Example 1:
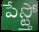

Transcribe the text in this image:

పేస్ట్తో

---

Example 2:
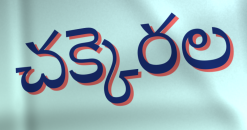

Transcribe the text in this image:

చక్కెరల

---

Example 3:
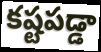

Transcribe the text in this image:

కష్టపడ్డా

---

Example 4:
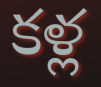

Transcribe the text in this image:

కళ్ల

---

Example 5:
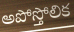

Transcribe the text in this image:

అపోస్తోలిక